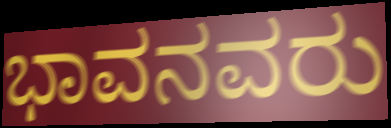
ಭಾವನವರು